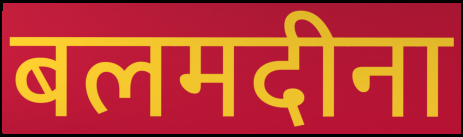
बलमदीना